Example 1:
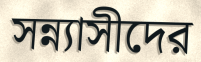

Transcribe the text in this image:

সন্ন্যাসীদের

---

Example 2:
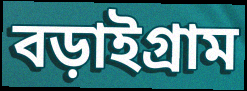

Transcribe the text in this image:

বড়াইগ্রাম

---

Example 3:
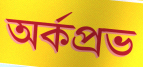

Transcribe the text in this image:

অর্কপ্রভ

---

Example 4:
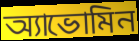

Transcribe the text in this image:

অ্যাভোমিন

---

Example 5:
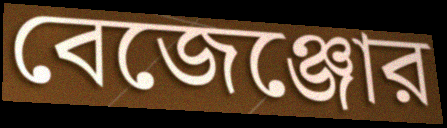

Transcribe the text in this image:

বেজেঞ্জোর